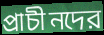
প্রাচীনদের